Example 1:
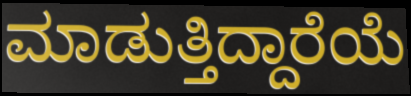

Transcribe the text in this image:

ಮಾಡುತ್ತಿದ್ದಾರೆಯೆ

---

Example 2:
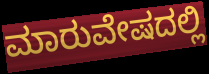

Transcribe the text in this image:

ಮಾರುವೇಷದಲ್ಲಿ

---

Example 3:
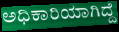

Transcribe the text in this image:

ಅಧಿಕಾರಿಯಾಗಿದ್ದೆ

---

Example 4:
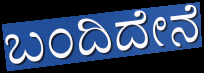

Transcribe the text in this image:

ಬಂದಿದೇನೆ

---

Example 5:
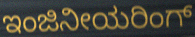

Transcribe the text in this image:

ಇಂಜಿನೀಯರಿಂಗ್